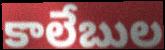
కాలేబుల